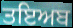
ਤਇਅਬ